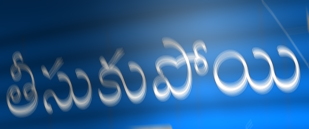
తీసుకుపోయి